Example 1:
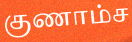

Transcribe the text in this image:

குணாம்ச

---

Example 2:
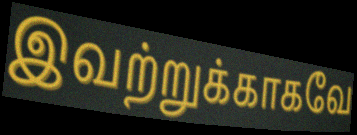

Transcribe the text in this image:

இவற்றுக்காகவே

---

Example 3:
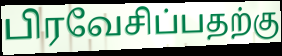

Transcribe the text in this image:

பிரவேசிப்பதற்கு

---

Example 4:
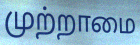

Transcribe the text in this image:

முற்றாமை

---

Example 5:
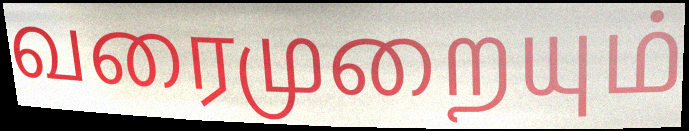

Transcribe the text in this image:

வரைமுறையும்